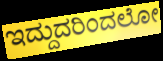
ಇದ್ದುದರಿಂದಲೋ